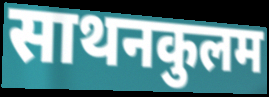
साथनकुलम